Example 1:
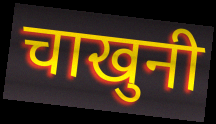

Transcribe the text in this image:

चाखुनी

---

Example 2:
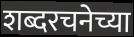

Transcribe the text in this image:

शब्दरचनेच्या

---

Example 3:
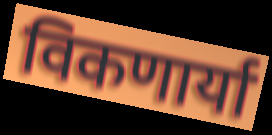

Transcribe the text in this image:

विकणार्या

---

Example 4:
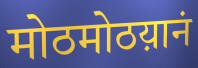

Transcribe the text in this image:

मोठमोठय़ानं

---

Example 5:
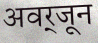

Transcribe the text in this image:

अवर्जून